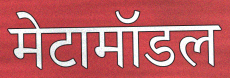
मेटामॉडल